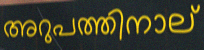
അറുപത്തിനാല്